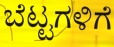
ಬೆಟ್ಟಗಳಿಗೆ